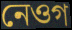
নেওগ